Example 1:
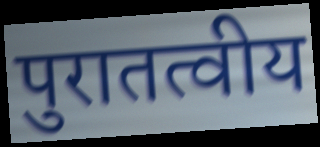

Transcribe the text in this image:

पुरातत्वीय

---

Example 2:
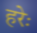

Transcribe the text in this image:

हरेः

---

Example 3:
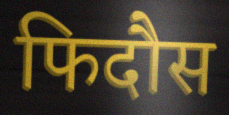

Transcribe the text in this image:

फिदौस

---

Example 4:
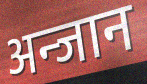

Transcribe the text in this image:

अन्जान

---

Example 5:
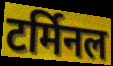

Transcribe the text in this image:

टर्मिनल